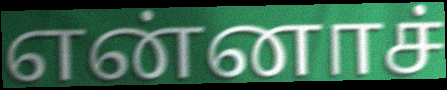
என்னாச்